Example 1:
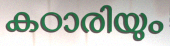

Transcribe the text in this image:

കഠാരിയും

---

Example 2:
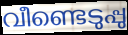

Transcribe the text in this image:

വീണ്ടെടുപ്പു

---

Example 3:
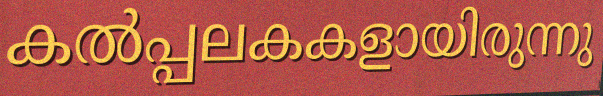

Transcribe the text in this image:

കൽപ്പലകകളായിരുന്നു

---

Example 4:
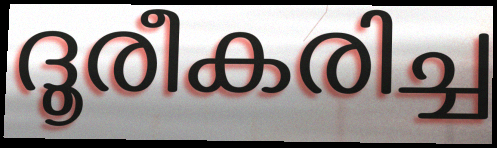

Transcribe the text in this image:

ദൂരീകരിച്ച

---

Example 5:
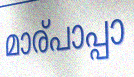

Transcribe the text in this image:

മാര്പാപ്പാ